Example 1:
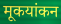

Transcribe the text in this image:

मूकयांकन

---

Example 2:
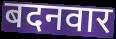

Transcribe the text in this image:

बदनवार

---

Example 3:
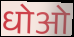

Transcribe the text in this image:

धोओ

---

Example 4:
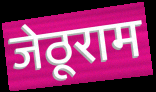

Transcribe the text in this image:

जेठूराम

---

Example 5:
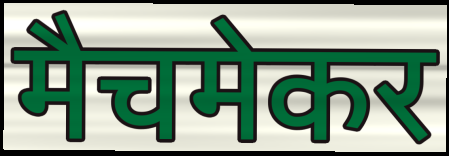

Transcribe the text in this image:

मैचमेकर